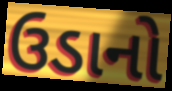
ઉડાનો